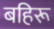
बहिरू